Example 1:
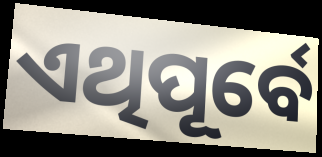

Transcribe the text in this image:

ଏଥିପୂର୍ବେ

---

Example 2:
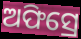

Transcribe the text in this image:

ଅଫିସ୍ରେ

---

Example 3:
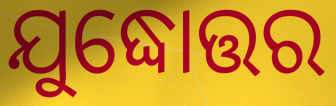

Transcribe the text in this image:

ଯୁଦ୍ଧୋତ୍ତର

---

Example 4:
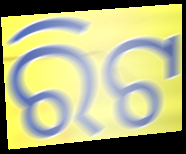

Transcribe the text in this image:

ରିଟ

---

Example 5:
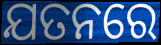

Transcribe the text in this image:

ଯତନରେ